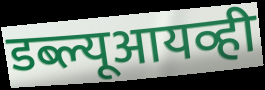
डब्ल्यूआयव्ही